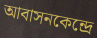
আবাসনকেন্দ্রে